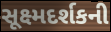
સૂક્ષ્મદર્શકની